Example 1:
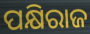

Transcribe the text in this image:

ପକ୍ଷିରାଜ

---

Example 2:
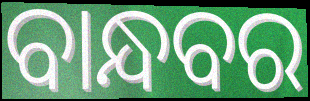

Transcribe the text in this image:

ବାନ୍ଧବର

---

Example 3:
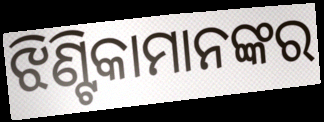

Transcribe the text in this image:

ଝିଣ୍ଟିକାମାନଙ୍କର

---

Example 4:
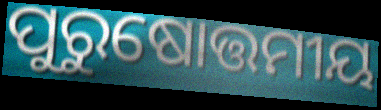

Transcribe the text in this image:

ପୁରୁଷୋତ୍ତମୀୟ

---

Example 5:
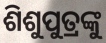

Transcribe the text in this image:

ଶିଶୁପୁତ୍ରଙ୍କୁ